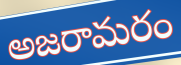
అజరామరం